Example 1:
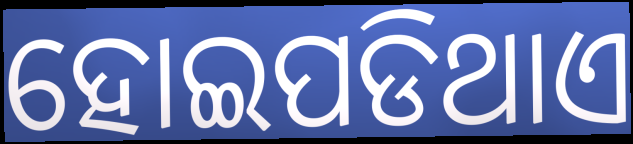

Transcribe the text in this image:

ହୋଇପଡିଥାଏ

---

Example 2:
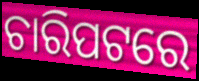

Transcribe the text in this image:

ଚାରିପଟରେ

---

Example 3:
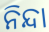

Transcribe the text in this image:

ନିନ୍ଦା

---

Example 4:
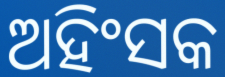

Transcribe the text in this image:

ଅହିଂସକ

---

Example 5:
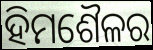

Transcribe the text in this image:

ହିମଶୈଳର